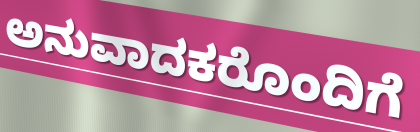
ಅನುವಾದಕರೊಂದಿಗೆ